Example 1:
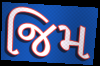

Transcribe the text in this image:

જિમ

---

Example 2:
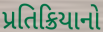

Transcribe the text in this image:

પ્રતિક્રિયાનો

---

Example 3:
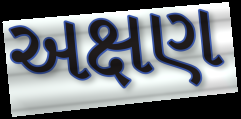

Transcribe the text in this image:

અક્ષણ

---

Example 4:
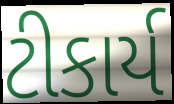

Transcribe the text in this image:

ટીકાર્ય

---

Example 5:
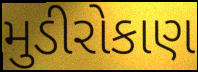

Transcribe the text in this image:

મુડીરોકાણ